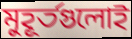
মুহূর্তগুলোই